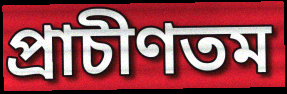
প্রাচীণতম